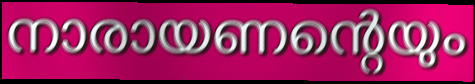
നാരായണന്റെയും